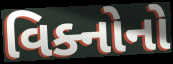
વિક્નોનો